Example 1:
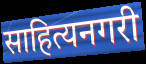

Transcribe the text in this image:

साहित्यनगरी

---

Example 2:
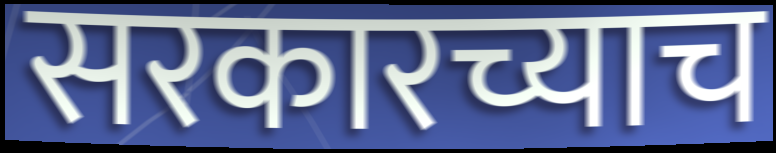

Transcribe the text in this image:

सरकारच्याच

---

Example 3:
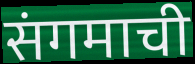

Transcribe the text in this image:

संगमाची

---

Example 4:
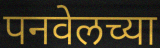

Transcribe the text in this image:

पनवेलच्या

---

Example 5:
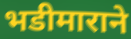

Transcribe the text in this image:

भडीमाराने